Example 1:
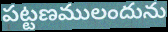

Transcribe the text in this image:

పట్టణములందును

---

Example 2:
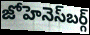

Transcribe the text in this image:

జోహెనెస్‍బర్గ్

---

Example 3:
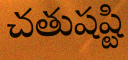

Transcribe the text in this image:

చతుషష్టి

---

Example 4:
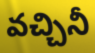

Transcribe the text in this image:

వచ్చినీ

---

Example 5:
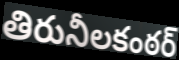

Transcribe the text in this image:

తిరునీలకంఠర్